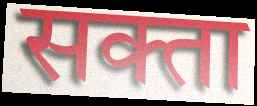
सक्ता